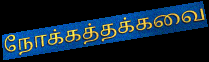
நோக்கத்தக்கவை